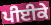
ਪੀਈਕੇ